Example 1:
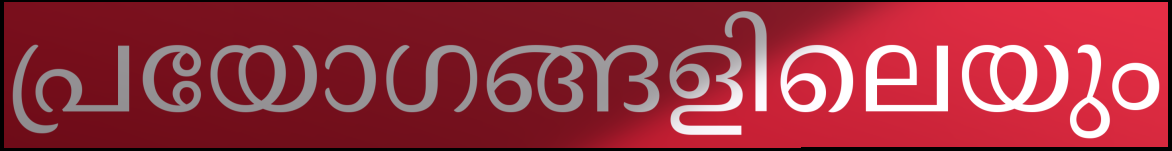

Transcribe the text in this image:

പ്രയോഗങ്ങളിലെയും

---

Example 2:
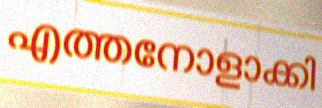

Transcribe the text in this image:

എത്തനോളാക്കി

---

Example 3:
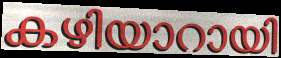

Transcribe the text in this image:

കഴിയാറായി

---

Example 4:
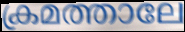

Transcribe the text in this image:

ക്രമത്താലേ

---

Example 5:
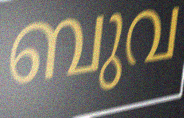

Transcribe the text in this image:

ബുവ